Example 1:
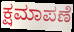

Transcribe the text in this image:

ಕ್ಷಮಾಪಣೆ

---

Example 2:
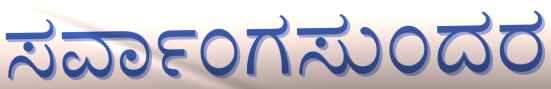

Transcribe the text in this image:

ಸರ್ವಾಂಗಸುಂದರ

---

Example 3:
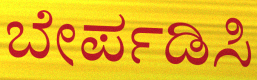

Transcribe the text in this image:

ಬೇರ್ಪಡಿಸಿ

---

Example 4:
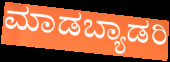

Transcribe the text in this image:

ಮಾಡಬ್ಯಾಡರಿ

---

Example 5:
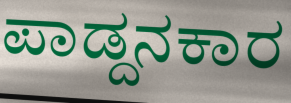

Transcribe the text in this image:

ಪಾಡ್ದನಕಾರ